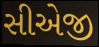
સીએજી